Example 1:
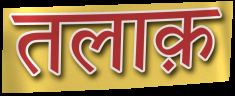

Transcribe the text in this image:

तलाक़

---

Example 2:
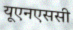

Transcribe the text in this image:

यूएनएससी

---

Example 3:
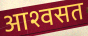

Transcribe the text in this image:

आश्वसत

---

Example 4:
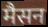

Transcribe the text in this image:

मैसन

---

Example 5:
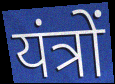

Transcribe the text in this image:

यंत्रों